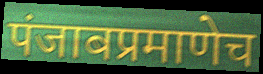
पंजाबप्रमाणेच